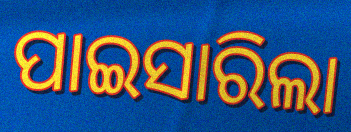
ପାଇସାରିଲା